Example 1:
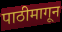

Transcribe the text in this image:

पाठीमागून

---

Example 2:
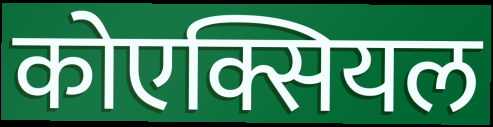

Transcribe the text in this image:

कोएक्सियल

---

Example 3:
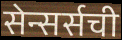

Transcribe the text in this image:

सेन्सर्सची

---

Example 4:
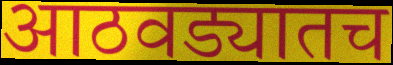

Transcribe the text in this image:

आठवड्यातच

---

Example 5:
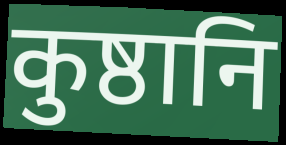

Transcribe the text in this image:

कुष्ठानि